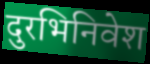
दुरभिनिवेश